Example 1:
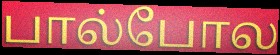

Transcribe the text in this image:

பால்போல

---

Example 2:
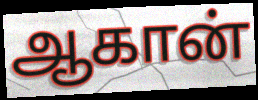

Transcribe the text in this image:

ஆகான்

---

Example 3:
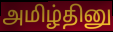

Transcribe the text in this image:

அமிழ்தினு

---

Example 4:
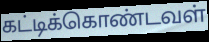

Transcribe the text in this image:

கட்டிக்கொண்டவள்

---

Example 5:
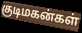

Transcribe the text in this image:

குடிமகன்கள்